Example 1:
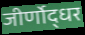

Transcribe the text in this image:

जीर्णोद्धर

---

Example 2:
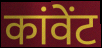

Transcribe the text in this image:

कांवेंट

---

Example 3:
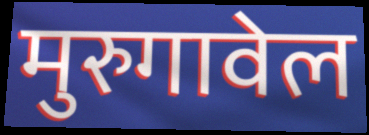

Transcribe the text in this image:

मुरुगावेल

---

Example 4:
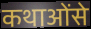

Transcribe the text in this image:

कथाओंसे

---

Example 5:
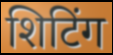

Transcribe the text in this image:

शिटिंग